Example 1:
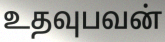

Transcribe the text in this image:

உதவுபவன்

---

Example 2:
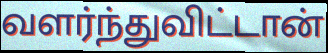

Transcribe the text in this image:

வளர்ந்துவிட்டான்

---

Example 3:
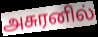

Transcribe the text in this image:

அசுரனில்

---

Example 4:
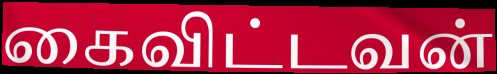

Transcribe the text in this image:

கைவிட்டவன்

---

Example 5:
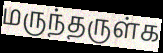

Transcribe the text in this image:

மருந்தருள்க